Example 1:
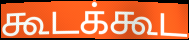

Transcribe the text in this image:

கூடக்கூட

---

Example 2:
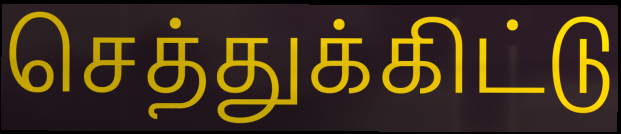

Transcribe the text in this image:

செத்துக்கிட்டு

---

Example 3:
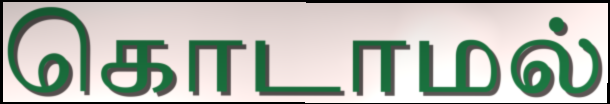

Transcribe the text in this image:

கொடாமல்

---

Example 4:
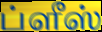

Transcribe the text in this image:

ப்ளீஸ்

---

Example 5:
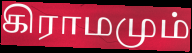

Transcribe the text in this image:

கிராமமும்